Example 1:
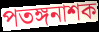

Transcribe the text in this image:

পতঙ্গনাশক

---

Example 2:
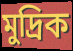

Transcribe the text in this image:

মুদ্রিক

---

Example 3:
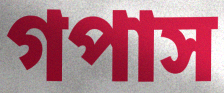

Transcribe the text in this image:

গপাস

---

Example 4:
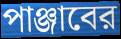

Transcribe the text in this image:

পাঞ্জাবের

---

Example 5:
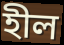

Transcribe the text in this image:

হীল